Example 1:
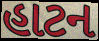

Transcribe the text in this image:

હાટન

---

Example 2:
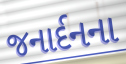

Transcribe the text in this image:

જનાર્દનના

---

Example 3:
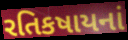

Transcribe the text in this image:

રતિકષાયનાં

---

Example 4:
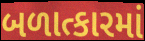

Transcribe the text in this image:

બળાત્કારમાં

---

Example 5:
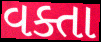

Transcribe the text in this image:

વક્તા